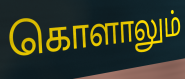
கொளாலும்